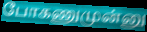
போகணுமுன்னு